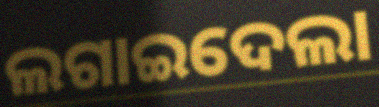
ଲଗାଇଦେଲା